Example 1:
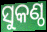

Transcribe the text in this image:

ସୁକଣ୍ଠ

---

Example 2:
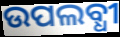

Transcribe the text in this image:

ଉପଲବ୍ଧୀ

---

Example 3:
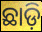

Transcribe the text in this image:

ଛାଡ଼ି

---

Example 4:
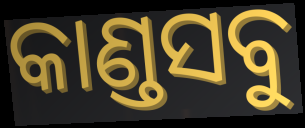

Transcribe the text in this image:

କାଣ୍ଡସବୁ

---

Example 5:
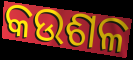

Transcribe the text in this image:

କଉଶଳ